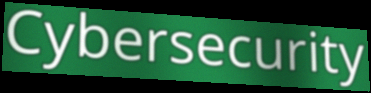
Cybersecurity